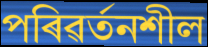
পৰিৱৰ্তনশীল